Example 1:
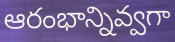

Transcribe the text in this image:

ఆరంభాన్నివ్వగా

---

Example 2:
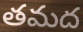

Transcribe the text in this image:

తమద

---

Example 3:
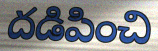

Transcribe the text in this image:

దడిపించి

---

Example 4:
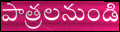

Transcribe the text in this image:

పాత్రలనుండి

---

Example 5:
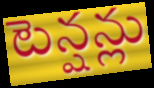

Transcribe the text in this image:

టెన్షన్లు